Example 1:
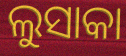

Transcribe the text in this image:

ଲୁସାକା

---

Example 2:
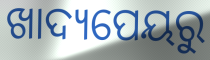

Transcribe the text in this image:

ଖାଦ୍ୟପେୟରୁ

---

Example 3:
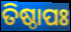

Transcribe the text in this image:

ତିଷ୍ଠାପଃ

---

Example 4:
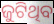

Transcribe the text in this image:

ଜୁଟିଥିବ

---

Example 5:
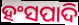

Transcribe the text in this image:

ହଂସପାଦି